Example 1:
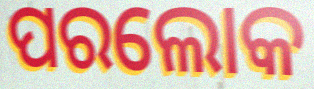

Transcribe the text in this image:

ପରଲୋକ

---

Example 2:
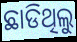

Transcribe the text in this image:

ଛାଡିଥିଲୁ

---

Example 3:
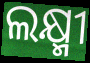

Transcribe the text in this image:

ଲକ୍ଷ୍ମୀ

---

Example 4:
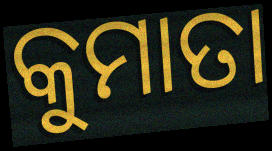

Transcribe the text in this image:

କୁମାତା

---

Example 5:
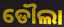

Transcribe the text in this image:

ଡୌଲା